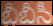
బీబీసీ